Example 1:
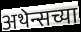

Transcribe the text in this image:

अथेन्सच्या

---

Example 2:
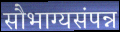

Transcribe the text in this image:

सौभाग्यसंपन्न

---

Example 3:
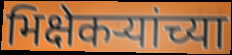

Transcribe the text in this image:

भिक्षेकऱ्यांच्या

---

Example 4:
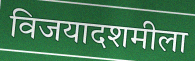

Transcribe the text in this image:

विजयादशमीला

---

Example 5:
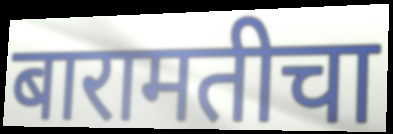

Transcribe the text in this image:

बारामतीचा